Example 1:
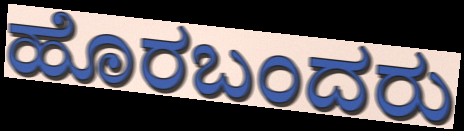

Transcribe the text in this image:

ಹೊರಬಂದರು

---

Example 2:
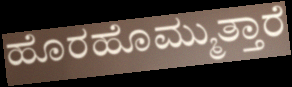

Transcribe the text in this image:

ಹೊರಹೊಮ್ಮುತ್ತಾರೆ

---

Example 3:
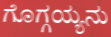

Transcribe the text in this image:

ಗೊಗ್ಗಯ್ಯನು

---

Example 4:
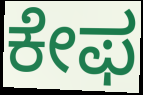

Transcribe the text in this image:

ಕೇಫ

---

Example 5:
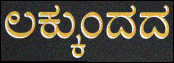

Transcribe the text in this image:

ಲಕ್ಕುಂದದ